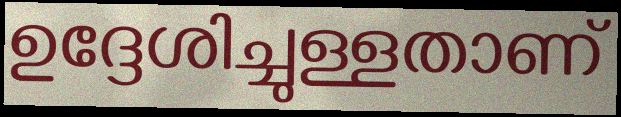
ഉദ്ദേശിച്ചുള്ളതാണ്